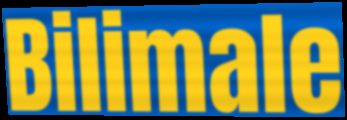
Bilimale